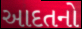
આદતનો